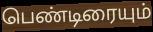
பெண்டிரையும்